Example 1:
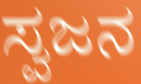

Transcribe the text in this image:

ಸ್ವಜನ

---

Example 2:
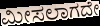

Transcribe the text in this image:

ಮೀಸಲಾಗದೇ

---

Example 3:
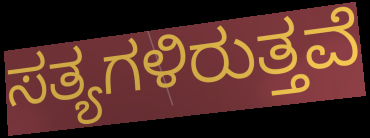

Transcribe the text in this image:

ಸತ್ಯಗಳಿರುತ್ತವೆ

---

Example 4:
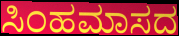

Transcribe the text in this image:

ಸಿಂಹಮಾಸದ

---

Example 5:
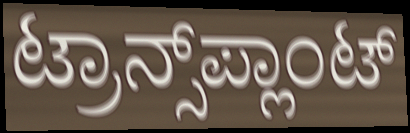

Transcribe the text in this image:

ಟ್ರಾನ್ಸ್‌ಪ್ಲಾಂಟ್